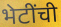
भेटींची